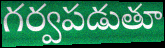
గర్వపడుతూ